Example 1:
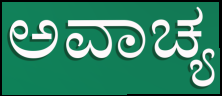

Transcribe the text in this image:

ಅವಾಚ್ಯ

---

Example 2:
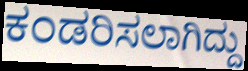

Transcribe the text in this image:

ಕಂಡರಿಸಲಾಗಿದ್ದು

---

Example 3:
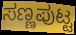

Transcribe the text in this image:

ಸಣ್ಣಪುಟ್ಟ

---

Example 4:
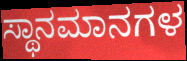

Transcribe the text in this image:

ಸ್ಥಾನಮಾನಗಳ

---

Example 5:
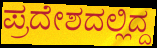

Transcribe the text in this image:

ಪ್ರದೇಶದಲ್ಲಿದ್ದ